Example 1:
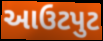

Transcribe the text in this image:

આઉટપુટ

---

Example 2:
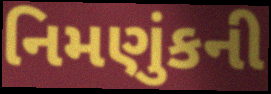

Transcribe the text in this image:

નિમણુંકની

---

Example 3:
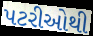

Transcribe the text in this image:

પટરીઓથી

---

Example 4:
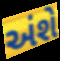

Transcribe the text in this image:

અંશે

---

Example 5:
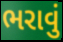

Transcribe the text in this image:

ભરાવું